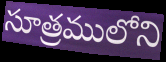
సూత్రములోని